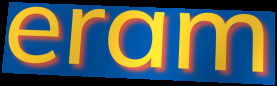
eram